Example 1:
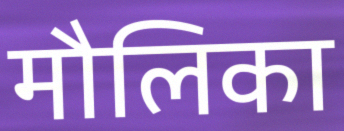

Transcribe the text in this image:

मौलिका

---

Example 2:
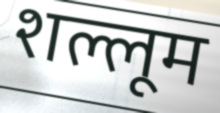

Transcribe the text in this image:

शल्लूम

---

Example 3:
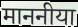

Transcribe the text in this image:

माननीया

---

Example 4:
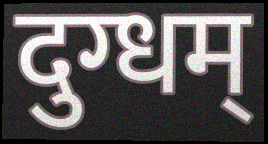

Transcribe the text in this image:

दुग्धम्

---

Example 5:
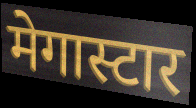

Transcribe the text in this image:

मेगास्टार